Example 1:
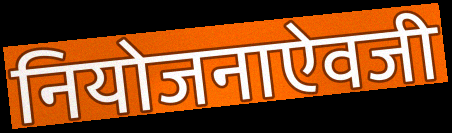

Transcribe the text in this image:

नियोजनाऐवजी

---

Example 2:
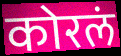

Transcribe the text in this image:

कोरलं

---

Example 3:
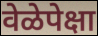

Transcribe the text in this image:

वेळेपेक्षा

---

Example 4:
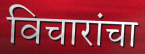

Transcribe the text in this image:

विचारांचा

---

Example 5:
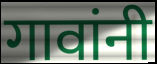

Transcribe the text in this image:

गावांनी